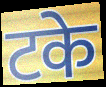
टके